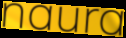
naura